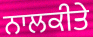
ਨਾਲਕੀਤੇ